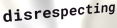
disrespecting